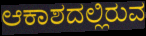
ಆಕಾಶದಲ್ಲಿರುವ